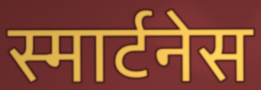
स्मार्टनेस